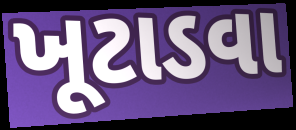
ખૂટાડવા